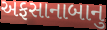
અફસાનાબાનુ